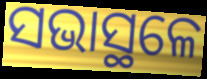
ସଭାସ୍ଥଳେ